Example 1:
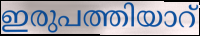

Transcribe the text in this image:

ഇരുപത്തിയാറ്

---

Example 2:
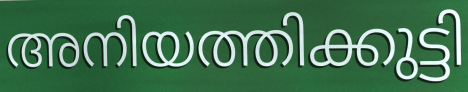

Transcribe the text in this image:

അനിയത്തിക്കുട്ടി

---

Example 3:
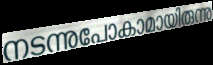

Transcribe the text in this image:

നടന്നുപോകാമായിരുന്നു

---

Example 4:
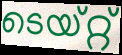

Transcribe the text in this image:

ടെയ്റ്റ്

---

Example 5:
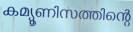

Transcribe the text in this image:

കമ്യൂണിസത്തിന്റെ